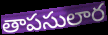
తాపసులార